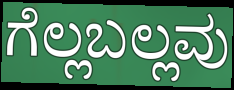
ಗೆಲ್ಲಬಲ್ಲವು